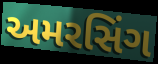
અમરસિંગ